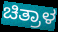
ಚಿತ್ರಾಳ